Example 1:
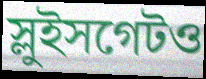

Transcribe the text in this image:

স্লুইসগেটও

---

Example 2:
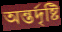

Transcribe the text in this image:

অন্তর্দৃষ্টি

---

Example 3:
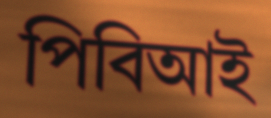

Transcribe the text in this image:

পিবিআই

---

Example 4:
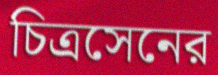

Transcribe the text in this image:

চিত্রসেনের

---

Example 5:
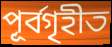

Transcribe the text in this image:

পূর্বগৃহীত